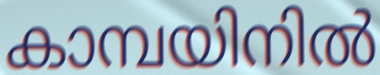
കാമ്പയിനിൽ